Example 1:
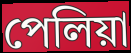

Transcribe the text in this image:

পেলিয়া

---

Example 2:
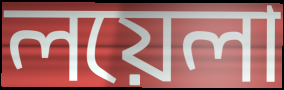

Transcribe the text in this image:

লয়েলা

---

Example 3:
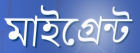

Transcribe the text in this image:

মাইগ্রেন্ট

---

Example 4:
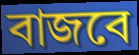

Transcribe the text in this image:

বাজবে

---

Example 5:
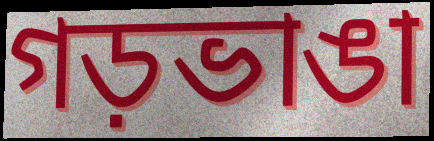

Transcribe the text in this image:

গড়ভাঙা